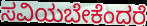
ಸವಿಯಬೇಕೆಂದರೆ